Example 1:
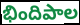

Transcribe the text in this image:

భిందిపాల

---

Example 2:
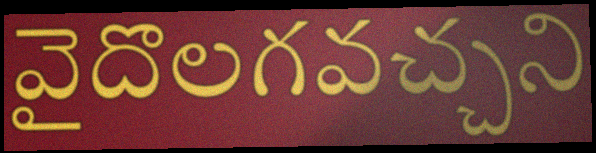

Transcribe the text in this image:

వైదొలగవచ్చని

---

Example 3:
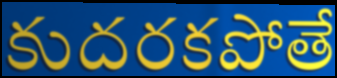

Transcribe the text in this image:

కుదరకపోతే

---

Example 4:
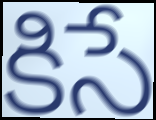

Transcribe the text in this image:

కిసే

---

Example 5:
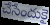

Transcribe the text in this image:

చేసేందుకై